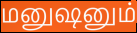
மனுஷனும்